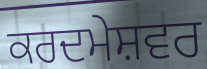
ਕਰਦਮੇਸ਼ਵਰ